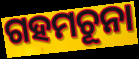
ଗହମଚୂନା